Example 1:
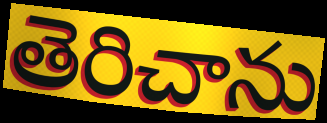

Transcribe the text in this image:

తెరిచాను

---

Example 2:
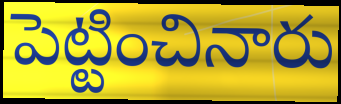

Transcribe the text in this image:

పెట్టించినారు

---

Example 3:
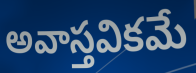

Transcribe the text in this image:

అవాస్తవికమే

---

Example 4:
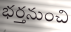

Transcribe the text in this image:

భర్తనుంచి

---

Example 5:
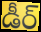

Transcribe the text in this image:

డీర్